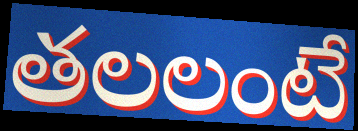
తలలంటే